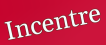
Incentre